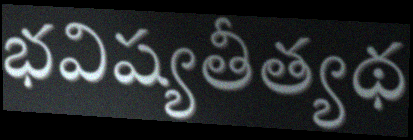
భవిష్యతీత్యథ